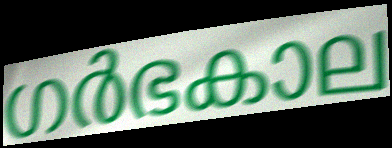
ഗർഭകാല